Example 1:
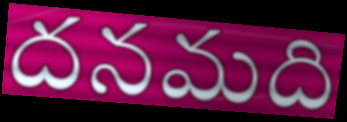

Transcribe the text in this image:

దనమది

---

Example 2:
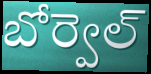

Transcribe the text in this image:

బోర్వెల్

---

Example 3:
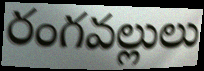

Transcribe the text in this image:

రంగవల్లులు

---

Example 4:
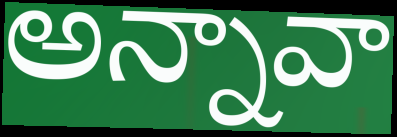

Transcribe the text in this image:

అన్నావా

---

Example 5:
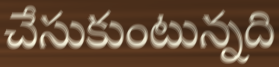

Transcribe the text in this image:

చేసుకుంటున్నది